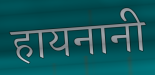
हायनानी